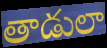
తాడులా